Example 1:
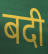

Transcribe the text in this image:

बदी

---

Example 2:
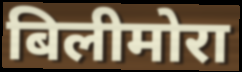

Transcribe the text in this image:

बिलीमोरा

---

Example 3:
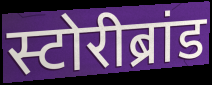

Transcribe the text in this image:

स्टोरीब्रांड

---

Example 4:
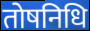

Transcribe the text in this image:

तोषनिधि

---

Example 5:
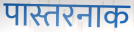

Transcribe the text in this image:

पास्तरनाक